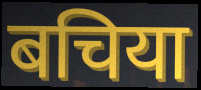
बचिया